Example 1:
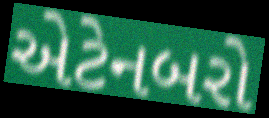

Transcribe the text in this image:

એટેનબરો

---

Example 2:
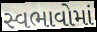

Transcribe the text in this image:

સ્વભાવોમાં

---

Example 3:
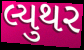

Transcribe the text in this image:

લ્યુથર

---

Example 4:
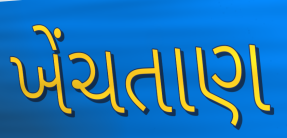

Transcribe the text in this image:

ખેંચતાણ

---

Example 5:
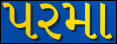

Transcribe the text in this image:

પરમા